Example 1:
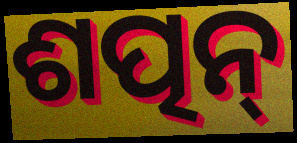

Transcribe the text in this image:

ଶତ୍ପନ୍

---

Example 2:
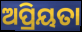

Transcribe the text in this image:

ଅପ୍ରିୟତା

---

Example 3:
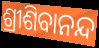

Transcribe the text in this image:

ଶ୍ରୀଶିବାନନ୍ଦ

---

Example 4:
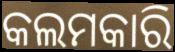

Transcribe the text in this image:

କଲମକାରି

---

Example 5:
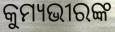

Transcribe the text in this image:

କୁମ୍ୟଭୀରଙ୍କ